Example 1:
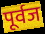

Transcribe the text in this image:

पूर्वज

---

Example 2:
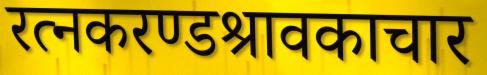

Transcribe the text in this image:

रत्नकरण्डश्रावकाचार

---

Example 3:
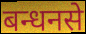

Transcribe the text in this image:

बन्धनसे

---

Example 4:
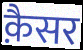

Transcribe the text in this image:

क़ैसर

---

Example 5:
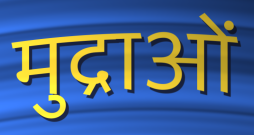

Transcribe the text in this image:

मुद्राओं